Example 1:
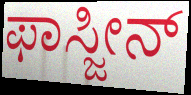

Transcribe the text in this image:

ಫಾಸ್ಜೀನ್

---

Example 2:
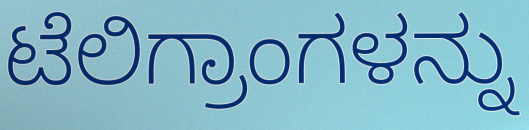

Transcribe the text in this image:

ಟೆಲಿಗ್ರಾಂಗಳನ್ನು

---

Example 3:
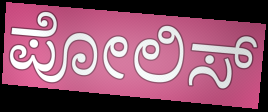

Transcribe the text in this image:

ಪೋಲಿಸ್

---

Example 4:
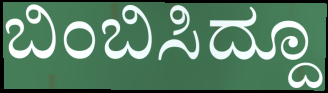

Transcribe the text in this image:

ಬಿಂಬಿಸಿದ್ದೂ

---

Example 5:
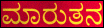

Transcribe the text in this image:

ಮಾರುತನ